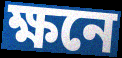
ক্ষনে